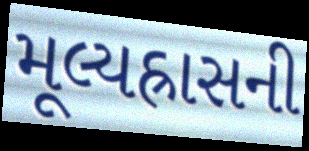
મૂલ્યહ્રાસની